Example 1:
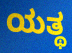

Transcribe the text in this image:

ಯತ್ಥ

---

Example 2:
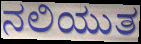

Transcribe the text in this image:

ನಲಿಯುತ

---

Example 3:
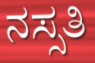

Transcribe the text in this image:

ನಸ್ಸತಿ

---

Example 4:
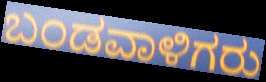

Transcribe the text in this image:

ಬಂಡವಾಳಿಗರು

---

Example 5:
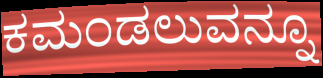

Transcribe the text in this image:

ಕಮಂಡಲುವನ್ನೂ